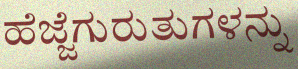
ಹೆಜ್ಜೆಗುರುತುಗಳನ್ನು